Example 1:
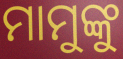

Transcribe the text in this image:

ମାମୁଙ୍କୁ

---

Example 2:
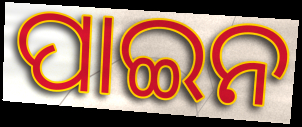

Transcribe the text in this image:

ପାଇନ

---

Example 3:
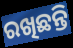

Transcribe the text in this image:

ରଖିଛନ୍ତି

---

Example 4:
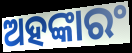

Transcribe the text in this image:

ଅହଙ୍କାରଂ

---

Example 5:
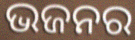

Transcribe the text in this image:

ଭଜନର